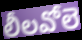
లీలవోలె